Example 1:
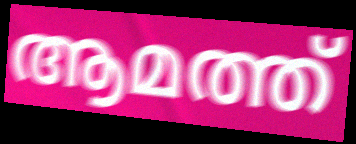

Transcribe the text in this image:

ആമത്ത്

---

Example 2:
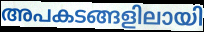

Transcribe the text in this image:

അപകടങ്ങളിലായി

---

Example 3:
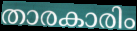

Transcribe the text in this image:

താരകാരിം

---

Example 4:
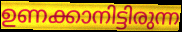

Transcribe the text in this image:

ഉണക്കാനിട്ടിരുന്ന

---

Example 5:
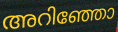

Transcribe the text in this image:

അറിഞ്ഞോ